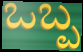
ಒಬ್ಪ